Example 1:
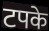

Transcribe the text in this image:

टपके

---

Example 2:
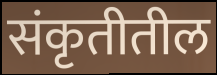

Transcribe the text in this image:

संकृतीतील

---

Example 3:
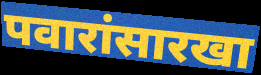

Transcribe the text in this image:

पवारांसारखा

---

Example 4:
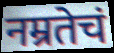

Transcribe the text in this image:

नम्रतेचं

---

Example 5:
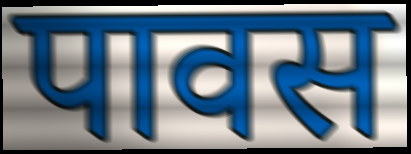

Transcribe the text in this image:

पावस